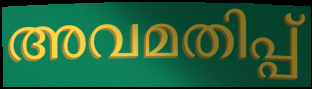
അവമതിപ്പ്